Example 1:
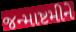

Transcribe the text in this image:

જન્માષ્ટમીને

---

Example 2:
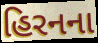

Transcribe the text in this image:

હિરનના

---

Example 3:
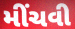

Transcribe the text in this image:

મીંચવી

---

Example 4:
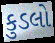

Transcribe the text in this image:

કુડલો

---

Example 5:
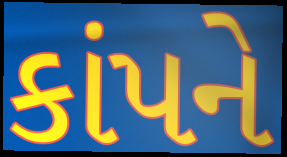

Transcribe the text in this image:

કાંપને